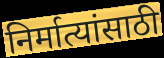
निर्मात्यांसाठी